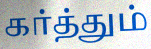
கர்த்தும்